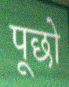
पूछो